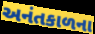
અનંતકાળના